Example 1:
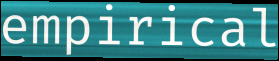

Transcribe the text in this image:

empirical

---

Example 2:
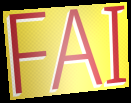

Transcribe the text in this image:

FAI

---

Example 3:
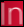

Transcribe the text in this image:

In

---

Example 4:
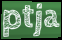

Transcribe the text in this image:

ptja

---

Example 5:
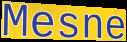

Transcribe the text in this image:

Mesne